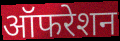
ऑफरेशन